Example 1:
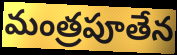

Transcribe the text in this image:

మంత్రపూతేన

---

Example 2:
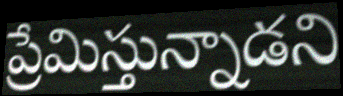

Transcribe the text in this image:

ప్రేమిస్తున్నాడని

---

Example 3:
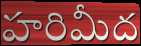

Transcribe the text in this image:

హరిమీద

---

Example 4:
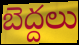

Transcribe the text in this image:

బెద్దలు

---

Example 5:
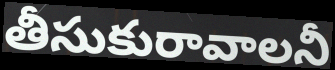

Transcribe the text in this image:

తీసుకురావాలనీ